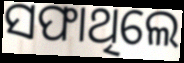
ସଫାଥିଲେ